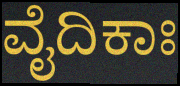
ವೈದಿಕಾಃ